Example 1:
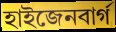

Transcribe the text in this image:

হাইজেনবার্গ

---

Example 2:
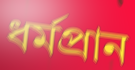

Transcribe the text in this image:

ধর্মপ্রান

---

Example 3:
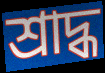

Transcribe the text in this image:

শ্রাদ্ধ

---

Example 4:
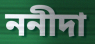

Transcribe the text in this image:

ননীদা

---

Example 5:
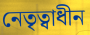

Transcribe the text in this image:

নেতৃত্বাধীন